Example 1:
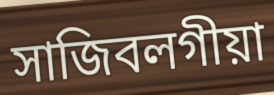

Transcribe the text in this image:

সাজিবলগীয়া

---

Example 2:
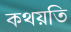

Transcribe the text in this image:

কথয়তি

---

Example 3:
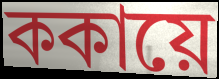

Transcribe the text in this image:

ককায়ে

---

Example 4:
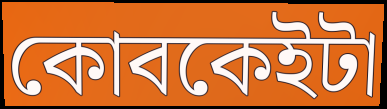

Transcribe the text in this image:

কোবকেইটা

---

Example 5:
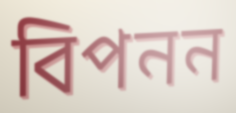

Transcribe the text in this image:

বিপনন